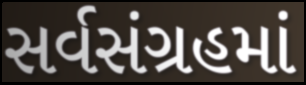
સર્વસંગ્રહમાં